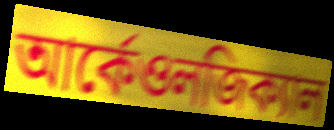
আর্কেওলজিক্যাল